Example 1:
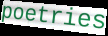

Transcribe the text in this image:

poetries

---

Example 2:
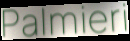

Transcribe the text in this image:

Palmieri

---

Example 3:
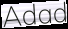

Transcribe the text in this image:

Adad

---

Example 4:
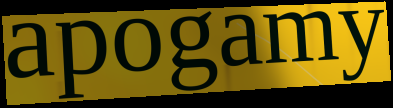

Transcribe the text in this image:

apogamy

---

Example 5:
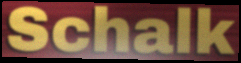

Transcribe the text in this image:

Schalk